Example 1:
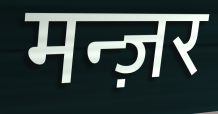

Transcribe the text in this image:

मन्ज़र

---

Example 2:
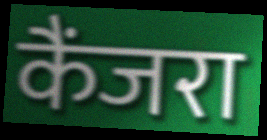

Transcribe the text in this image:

कैंजरा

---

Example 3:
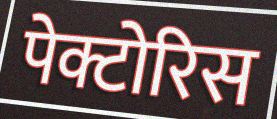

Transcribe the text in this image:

पेक्टोरिस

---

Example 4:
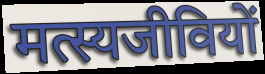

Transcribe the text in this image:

मत्स्यजीवियों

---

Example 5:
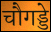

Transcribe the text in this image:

चौगड्डे